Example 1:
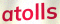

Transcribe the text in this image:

atolls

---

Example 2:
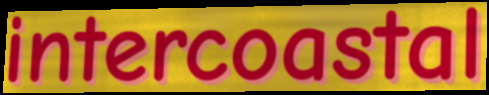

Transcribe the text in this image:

intercoastal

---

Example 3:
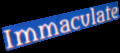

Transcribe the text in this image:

Immaculate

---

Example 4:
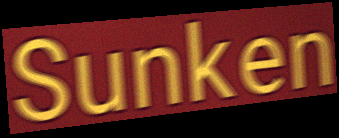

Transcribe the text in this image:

Sunken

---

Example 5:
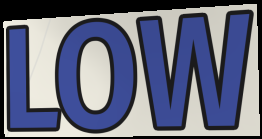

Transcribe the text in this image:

LOW